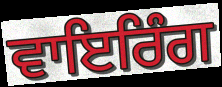
ਵਾਇਰਿੰਗ